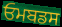
ਓਮਬਡਸ